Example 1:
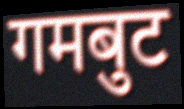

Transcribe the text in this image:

गमबुट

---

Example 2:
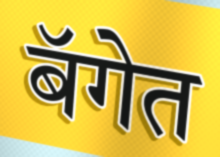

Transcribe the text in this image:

बॅगेत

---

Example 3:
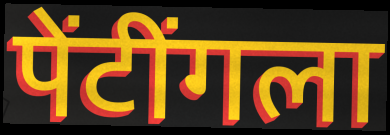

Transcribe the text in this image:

पेंटींगला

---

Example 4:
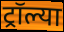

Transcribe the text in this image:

ट्रॉल्या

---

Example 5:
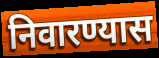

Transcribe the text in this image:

निवारण्यास